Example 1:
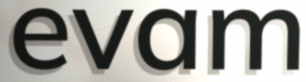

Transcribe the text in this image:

evam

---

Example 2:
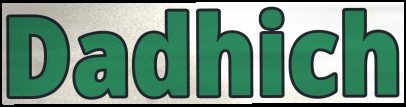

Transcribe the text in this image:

Dadhich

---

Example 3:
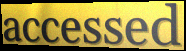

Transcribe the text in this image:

accessed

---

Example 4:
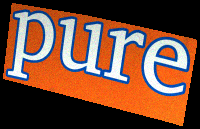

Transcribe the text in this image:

pure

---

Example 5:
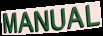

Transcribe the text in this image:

MANUAL